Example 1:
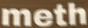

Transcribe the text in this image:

meth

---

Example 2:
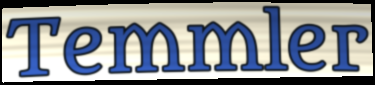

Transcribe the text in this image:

Temmler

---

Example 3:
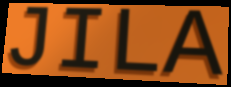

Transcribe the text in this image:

JILA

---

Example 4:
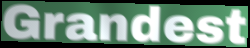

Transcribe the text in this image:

Grandest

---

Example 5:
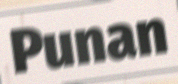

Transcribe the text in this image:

Punan